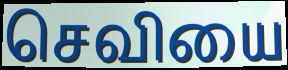
செவியை